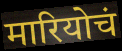
मारियोचं